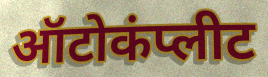
ऑटोकंप्लीट